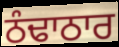
ਠੰਢਾਠਾਰ